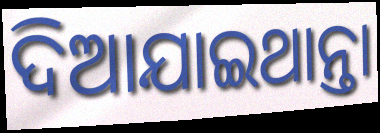
ଦିଆଯାଇଥାନ୍ତା